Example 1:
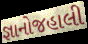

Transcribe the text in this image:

જ્ઞાનોજહાલી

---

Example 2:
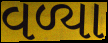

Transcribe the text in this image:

વળ્યા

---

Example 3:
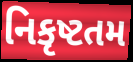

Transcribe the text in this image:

નિકૃષ્ટતમ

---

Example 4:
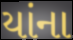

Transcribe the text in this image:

યાંના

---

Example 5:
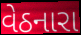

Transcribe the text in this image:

વેઠનારા